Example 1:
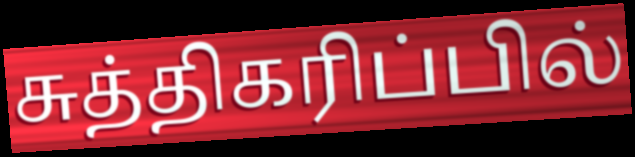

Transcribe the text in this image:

சுத்திகரிப்பில்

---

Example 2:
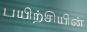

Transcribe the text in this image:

பயிற்சியின்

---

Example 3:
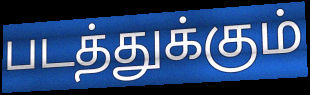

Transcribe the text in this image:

படத்துக்கும்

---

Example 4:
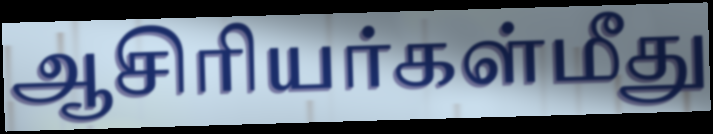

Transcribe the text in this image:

ஆசிரியர்கள்மீது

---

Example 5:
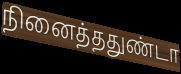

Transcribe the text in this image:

நினைத்ததுண்டா